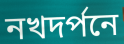
নখদর্পনে